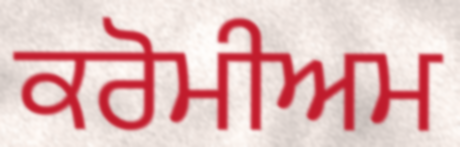
ਕਰੋਮੀਅਮ